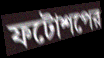
ফটোশপের